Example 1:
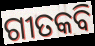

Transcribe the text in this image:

ଗୀତକବି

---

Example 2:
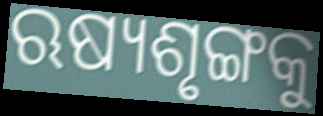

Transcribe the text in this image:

ଋଷ୍ୟଶୃଙ୍ଗକୁ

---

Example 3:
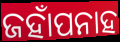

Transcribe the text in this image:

ଜହାଁପନାହ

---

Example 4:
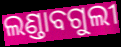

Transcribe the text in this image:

ଲଣ୍ଡାବଗୁଲୀ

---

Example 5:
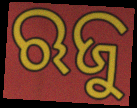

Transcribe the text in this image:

ଋଜୁ